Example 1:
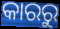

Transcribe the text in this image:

କାରରୁ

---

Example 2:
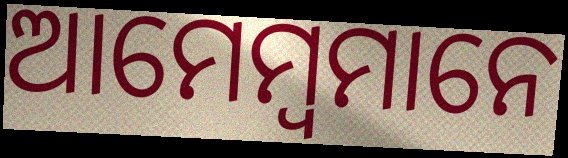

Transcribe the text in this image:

ଆମେମ୍ବମାନେ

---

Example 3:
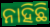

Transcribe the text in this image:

ନାହିଛି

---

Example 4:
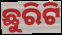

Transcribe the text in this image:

ଛୁରିଟି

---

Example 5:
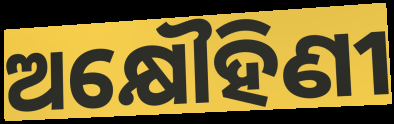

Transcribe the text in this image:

ଅକ୍ଷୌହିଣୀ